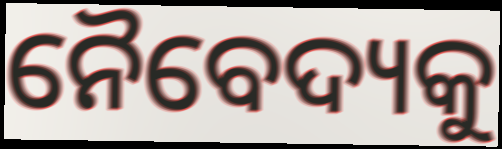
ନୈବେଦ୍ୟକୁ